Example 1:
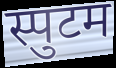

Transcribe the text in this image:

स्पुटम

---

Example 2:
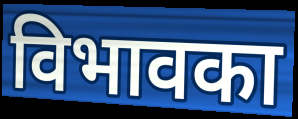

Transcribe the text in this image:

विभावका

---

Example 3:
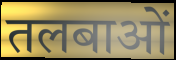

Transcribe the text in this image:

तलबाओं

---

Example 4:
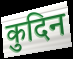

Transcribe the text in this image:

कुदिन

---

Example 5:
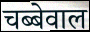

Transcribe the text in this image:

चब्बेवाल